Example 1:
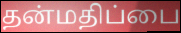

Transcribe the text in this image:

தன்மதிப்பை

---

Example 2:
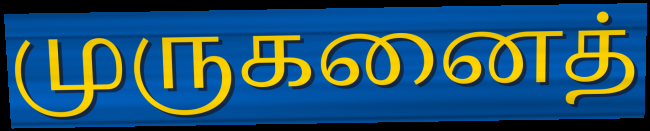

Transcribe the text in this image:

முருகனைத்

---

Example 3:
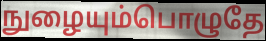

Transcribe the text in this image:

நுழையும்பொழுதே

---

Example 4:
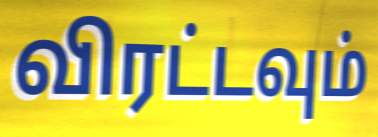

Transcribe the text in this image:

விரட்டவும்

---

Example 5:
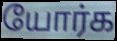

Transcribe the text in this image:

யோர்க